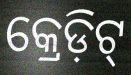
କ୍ରେଡ଼ିଟ୍